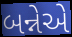
બન્નેએ